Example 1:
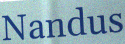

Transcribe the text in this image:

Nandus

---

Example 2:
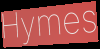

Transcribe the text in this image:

Hymes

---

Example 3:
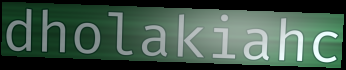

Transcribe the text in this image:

dholakiahc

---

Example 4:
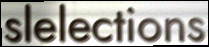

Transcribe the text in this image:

slelections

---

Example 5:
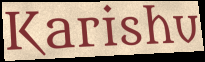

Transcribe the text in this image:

Karishu